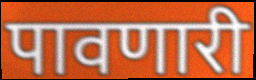
पावणारी